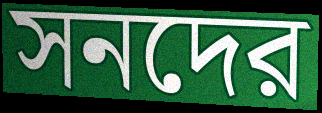
সনদের